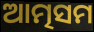
ଆତ୍ମସମ